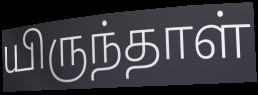
யிருந்தாள்